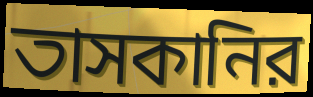
তাসকানির